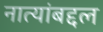
नात्यांबद्दल